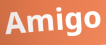
Amigo